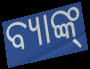
ବ୍ୟାଙ୍କ୍